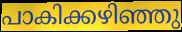
പാകിക്കഴിഞ്ഞു